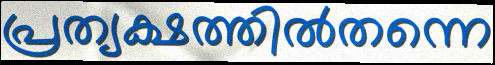
പ്രത്യക്ഷത്തിൽതന്നെ